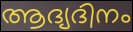
ആദ്യദിനം